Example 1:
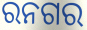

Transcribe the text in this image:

ରନଗର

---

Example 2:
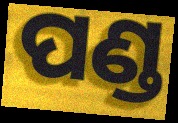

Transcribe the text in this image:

ପଣ୍ଡ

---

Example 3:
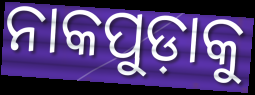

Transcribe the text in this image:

ନାକପୁଡ଼ାକୁ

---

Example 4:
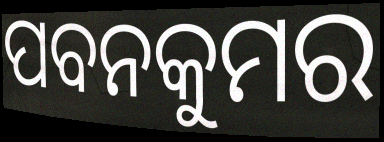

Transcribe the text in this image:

ପବନକୁମର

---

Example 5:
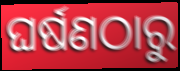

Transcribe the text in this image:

ଘର୍ଷଣଠାରୁ